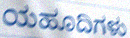
ಯಹೂದಿಗಳು